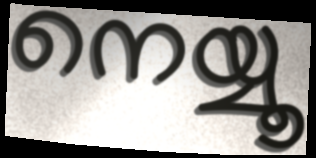
നെയ്യൂ